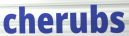
cherubs